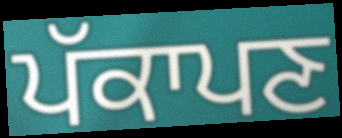
ਪੱਕਾਪਣ